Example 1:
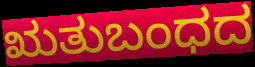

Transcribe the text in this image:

ಋತುಬಂಧದ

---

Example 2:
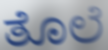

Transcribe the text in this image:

ತೊಲೆ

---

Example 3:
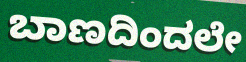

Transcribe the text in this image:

ಬಾಣದಿಂದಲೇ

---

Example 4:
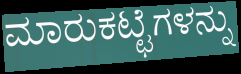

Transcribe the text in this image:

ಮಾರುಕಟ್ಟೆಗಳನ್ನು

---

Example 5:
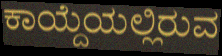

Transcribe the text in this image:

ಕಾಯ್ದೆಯಲ್ಲಿರುವ